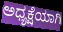
ಅಧ್ಯಕ್ಷೆಯಾಗಿ